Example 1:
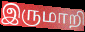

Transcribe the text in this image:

இருமாறி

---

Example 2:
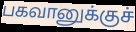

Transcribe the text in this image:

பகவானுக்குச்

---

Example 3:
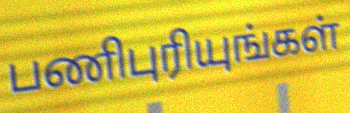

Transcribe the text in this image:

பணிபுரியுங்கள்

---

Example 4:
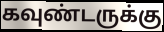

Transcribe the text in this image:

கவுண்டருக்கு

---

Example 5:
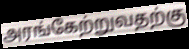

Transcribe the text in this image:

அரங்கேற்றுவதற்கு